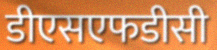
डीएसएफडीसी